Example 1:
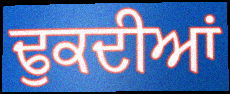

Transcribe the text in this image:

ਢੁਕਦੀਆਂ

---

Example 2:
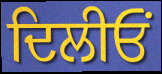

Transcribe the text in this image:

ਦਿਲੀਓਂ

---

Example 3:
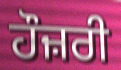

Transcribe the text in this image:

ਹੌਜ਼ਰੀ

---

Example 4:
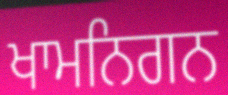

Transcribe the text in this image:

ਖਾਮਨਿਗਨ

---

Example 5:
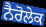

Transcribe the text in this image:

ਨੈਰੋਲੇਕ